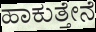
ಹಾಕುತ್ತೇನೆ